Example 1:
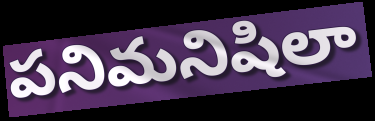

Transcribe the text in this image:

పనిమనిషిలా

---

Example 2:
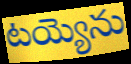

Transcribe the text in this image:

టయ్యెను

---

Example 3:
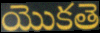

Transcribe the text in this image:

యొకతె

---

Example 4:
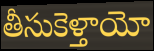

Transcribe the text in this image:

తీసుకెళ్తాయో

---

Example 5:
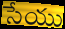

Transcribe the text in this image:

సేయు